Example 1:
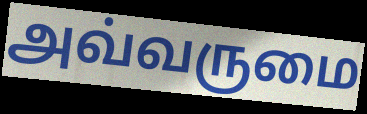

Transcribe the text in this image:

அவ்வருமை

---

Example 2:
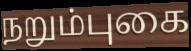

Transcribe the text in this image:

நறும்புகை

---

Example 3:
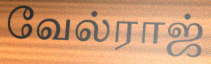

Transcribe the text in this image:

வேல்ராஜ்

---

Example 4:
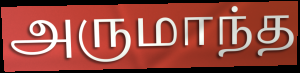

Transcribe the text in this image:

அருமாந்த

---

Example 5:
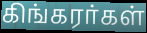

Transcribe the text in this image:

கிங்கரர்கள்